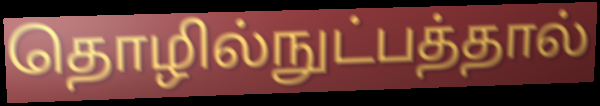
தொழில்நுட்பத்தால்